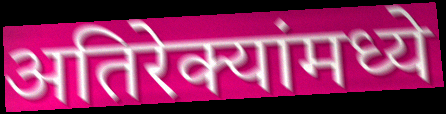
अतिरेक्यांमध्ये